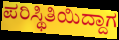
ಪರಿಸ್ಥಿತಿಯಿದ್ದಾಗ